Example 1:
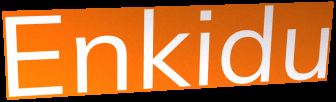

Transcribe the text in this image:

Enkidu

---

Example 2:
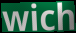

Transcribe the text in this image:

wich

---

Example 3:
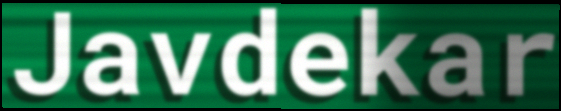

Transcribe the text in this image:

Javdekar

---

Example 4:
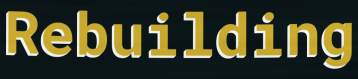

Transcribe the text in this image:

Rebuilding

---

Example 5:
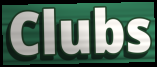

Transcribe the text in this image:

Clubs